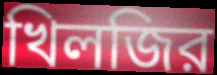
খিলজির